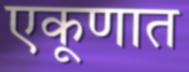
एकूणात